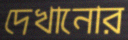
দেখানোর